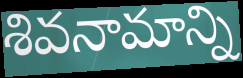
శివనామాన్ని